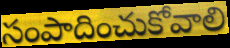
సంపాదించుకోవాలి